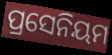
ପ୍ରସେନିୟମ